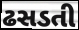
ઢસડતી